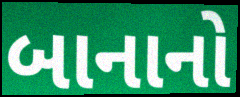
બાનાનો